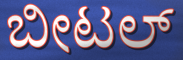
ಬೀಟಲ್